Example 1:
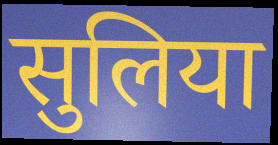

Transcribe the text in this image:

सुलिया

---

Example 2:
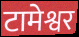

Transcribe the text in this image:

टामेश्वर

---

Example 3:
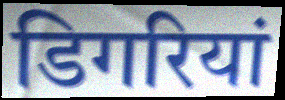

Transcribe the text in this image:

डिगरियां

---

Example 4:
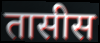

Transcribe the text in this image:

तासीस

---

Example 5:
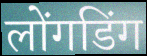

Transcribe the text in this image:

लोंगडिंग